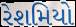
રેશમિયો